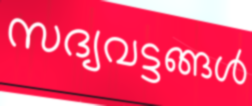
സദ്യവട്ടങ്ങൾ